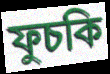
ফুচকি